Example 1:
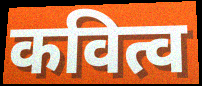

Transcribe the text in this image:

कवित्व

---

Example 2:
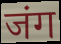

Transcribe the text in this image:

जंग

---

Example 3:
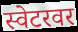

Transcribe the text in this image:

स्वेटरवर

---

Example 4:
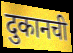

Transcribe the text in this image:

दुकानची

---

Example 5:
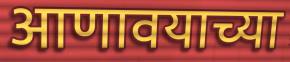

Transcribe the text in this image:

आणावयाच्या